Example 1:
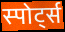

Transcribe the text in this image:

स्पोर्ट्स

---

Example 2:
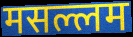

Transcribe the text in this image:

मसल्लम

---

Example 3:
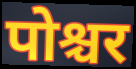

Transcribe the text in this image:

पोश्चर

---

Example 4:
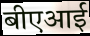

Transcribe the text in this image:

बीएआई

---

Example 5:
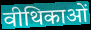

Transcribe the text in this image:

वीथिकाओं